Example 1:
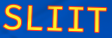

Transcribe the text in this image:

SLIIT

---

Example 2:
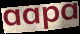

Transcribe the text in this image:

aapa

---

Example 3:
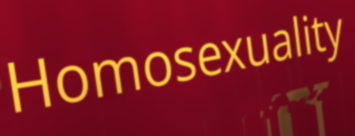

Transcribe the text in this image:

Homosexuality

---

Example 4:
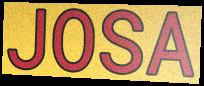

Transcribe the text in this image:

JOSA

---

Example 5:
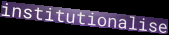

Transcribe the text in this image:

institutionalise